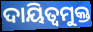
ଦାୟିତ୍ବମୁକ୍ତ